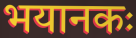
भयानकः